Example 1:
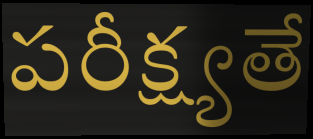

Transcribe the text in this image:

పరీక్ష్యతే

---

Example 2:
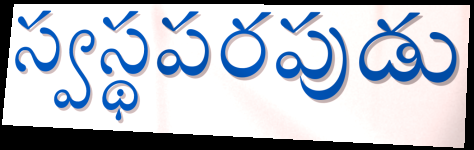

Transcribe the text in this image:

స్వస్థపరపుడు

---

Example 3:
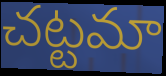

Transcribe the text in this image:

చట్టమా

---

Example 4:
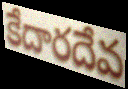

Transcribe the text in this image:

కేదారదేవ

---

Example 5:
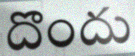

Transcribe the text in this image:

దొందు